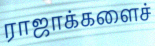
ராஜாக்களைச்